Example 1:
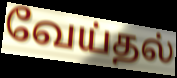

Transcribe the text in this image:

வேய்தல்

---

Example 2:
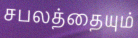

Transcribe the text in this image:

சபலத்தையும்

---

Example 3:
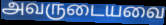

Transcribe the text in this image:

அவருடையவை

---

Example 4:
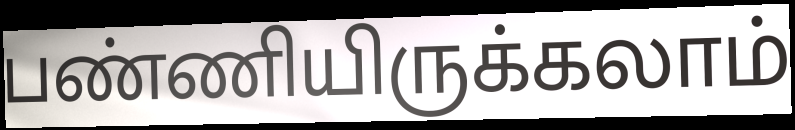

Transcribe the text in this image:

பண்ணியிருக்கலாம்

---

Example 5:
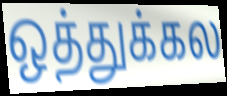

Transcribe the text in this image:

ஒத்துக்கல